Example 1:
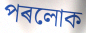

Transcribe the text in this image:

পৰলোক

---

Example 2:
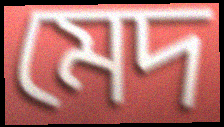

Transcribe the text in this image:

মেদ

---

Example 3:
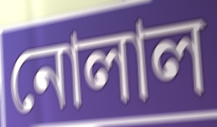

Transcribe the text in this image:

নোলাল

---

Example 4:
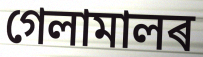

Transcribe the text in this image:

গেলামালৰ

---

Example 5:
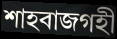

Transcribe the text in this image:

শাহবাজগহী